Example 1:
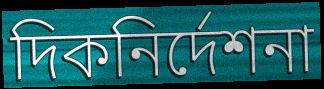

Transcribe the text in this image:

দিকনির্দেশনা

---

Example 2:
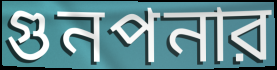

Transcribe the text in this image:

গুনপনার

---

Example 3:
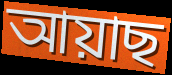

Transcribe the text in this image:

আয়াছ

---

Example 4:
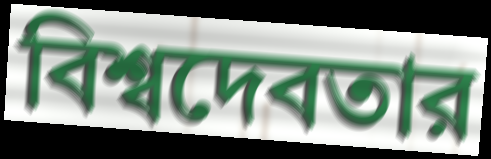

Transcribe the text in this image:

বিশ্বদেবতার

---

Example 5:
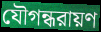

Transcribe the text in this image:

যৌগন্ধরায়ণ